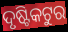
ଦୃଷ୍ଟିକଟୁର